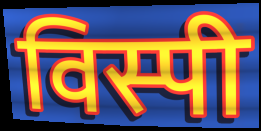
विस्पी